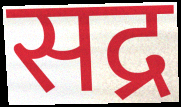
सद्र